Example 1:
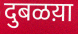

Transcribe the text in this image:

दुबळय़ा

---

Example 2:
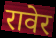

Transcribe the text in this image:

रावेर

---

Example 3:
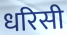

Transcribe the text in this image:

धरिसी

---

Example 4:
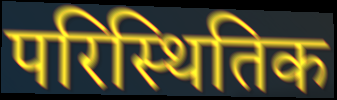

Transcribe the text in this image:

परिस्थितिक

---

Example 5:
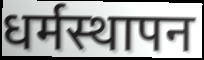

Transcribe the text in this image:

धर्मस्थापन